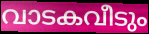
വാടകവീടും